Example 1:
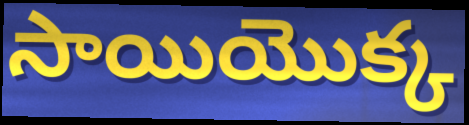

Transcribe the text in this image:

సాయియొక్క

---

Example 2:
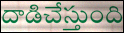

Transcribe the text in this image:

దాడిచేస్తుంది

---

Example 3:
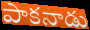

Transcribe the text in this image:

పాకనాడు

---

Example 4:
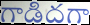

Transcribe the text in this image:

గాడిదగా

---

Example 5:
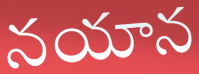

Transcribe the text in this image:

నయాన